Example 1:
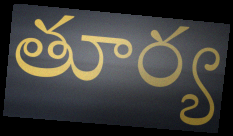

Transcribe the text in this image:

తూర్య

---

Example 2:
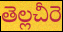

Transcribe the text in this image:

తెల్లచీరె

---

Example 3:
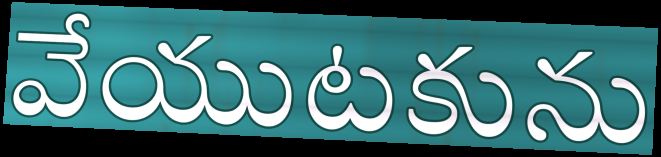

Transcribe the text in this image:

వేయుటకును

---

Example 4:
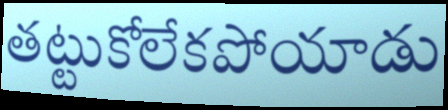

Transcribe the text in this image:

తట్టుకోలేకపోయాడు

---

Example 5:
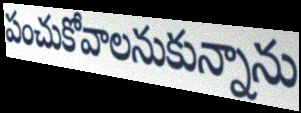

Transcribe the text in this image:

పంచుకోవాలనుకున్నాను